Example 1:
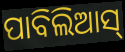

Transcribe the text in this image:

ପାବିଲିଆସ୍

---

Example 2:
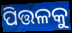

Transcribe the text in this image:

ପିତ୍ତଳକୁ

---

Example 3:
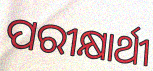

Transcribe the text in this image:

ପରୀକ୍ଷାର୍ଥୀ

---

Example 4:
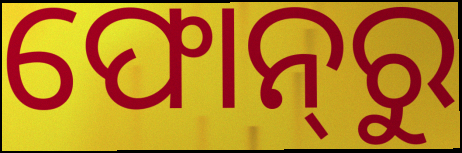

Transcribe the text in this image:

ଫୋନ୍‌ରୁ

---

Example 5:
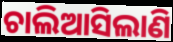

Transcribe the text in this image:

ଚାଲିଆସିଲାଣି